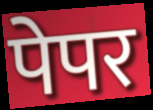
पेपर